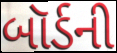
બૉર્ડની